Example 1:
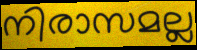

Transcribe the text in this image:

നിരാസമല്ല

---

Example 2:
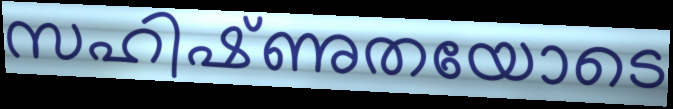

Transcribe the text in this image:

സഹിഷ്‌ണുതയോടെ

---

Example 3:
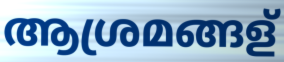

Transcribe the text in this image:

ആശ്രമങ്ങള്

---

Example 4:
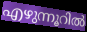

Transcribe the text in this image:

എഴുന്നൂറിൽ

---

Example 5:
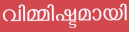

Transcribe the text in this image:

വിമ്മിഷ്ടമായി